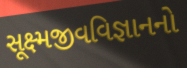
સૂક્ષ્મજીવવિજ્ઞાનનો